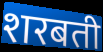
शरबती